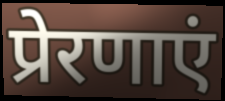
प्रेरणाएं